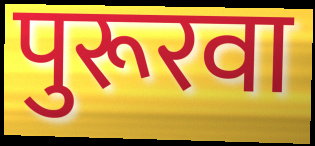
पुरूरवा